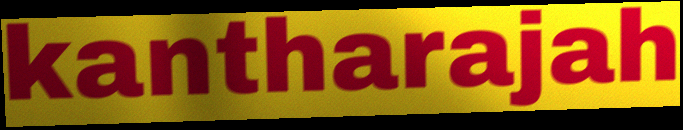
kantharajah